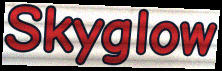
Skyglow